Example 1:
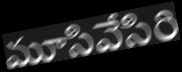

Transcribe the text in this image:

మూసివేసిరి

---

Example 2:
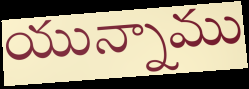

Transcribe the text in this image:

యున్నాము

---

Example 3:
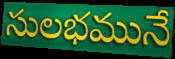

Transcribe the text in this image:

సులభమునే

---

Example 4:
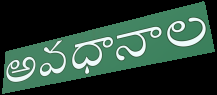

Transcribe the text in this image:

అవధానాల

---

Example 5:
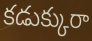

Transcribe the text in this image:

కడుక్కురా